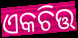
ଏକଚିତ୍ତ